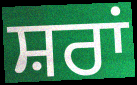
ਸ਼ਰਾਂ